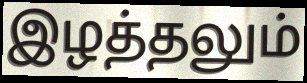
இழத்தலும்